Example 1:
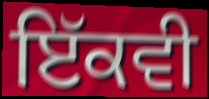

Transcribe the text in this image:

ਇੱਕਵੀ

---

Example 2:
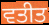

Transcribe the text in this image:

ਵਤੀਤ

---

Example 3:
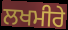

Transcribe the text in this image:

ਲਖਮੀਰੇ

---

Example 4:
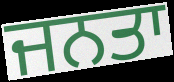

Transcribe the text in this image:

ਜਨਤਾ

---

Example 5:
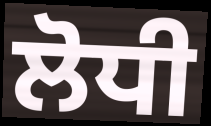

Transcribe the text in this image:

ਲੋਧੀ